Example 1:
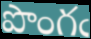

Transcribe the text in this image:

పొంగఁ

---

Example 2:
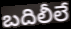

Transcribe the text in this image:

బదిలీలే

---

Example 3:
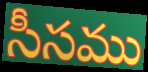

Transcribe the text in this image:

సీసము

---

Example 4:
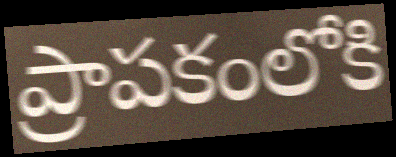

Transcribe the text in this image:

ప్రాపకంలోకి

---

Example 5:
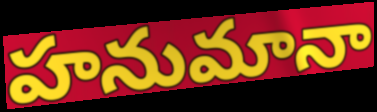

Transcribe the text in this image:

హనుమానా